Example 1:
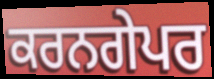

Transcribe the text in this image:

ਕਰਨਗੇਪਰ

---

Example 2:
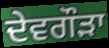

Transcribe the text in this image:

ਦੇਵਗੌੜਾ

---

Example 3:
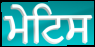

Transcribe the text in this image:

ਮੇਟਿਸ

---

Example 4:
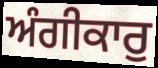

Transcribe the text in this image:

ਅੰਗੀਕਾਰੁ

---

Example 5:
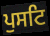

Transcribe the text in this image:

ਪੁਸਟਿ